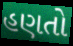
હણતો